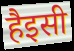
हैइसी